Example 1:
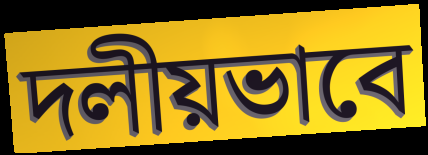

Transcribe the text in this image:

দলীয়ভাবে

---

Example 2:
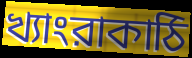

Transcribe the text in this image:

খ্যাংরাকাঠি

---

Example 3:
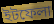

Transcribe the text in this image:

ইটফেলা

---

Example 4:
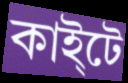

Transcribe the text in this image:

কাই্টে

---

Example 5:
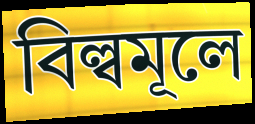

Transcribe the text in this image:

বিল্বমূলে